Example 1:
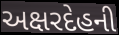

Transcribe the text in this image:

અક્ષરદેહની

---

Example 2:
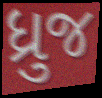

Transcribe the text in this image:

ધ્રુજ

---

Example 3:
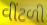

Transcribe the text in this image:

વીંટળી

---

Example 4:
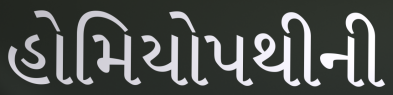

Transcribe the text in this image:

હોમિયોપથીની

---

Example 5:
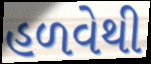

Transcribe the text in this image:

હળવેથી